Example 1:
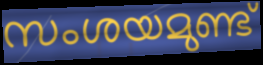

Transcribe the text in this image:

സംശയമുണ്ട്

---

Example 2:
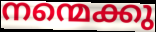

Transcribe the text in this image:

നന്മെക്കു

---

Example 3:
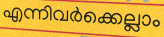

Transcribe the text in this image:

എന്നിവർക്കെല്ലാം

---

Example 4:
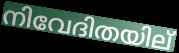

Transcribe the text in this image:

നിവേദിതയില്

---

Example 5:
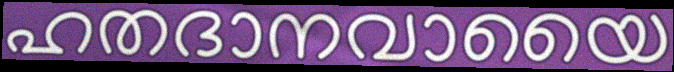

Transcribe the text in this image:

ഹതദാനവായൈ